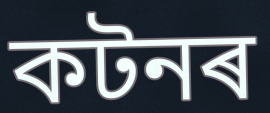
কটনৰ